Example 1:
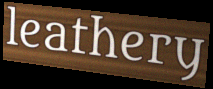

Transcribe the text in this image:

leathery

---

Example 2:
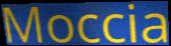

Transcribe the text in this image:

Moccia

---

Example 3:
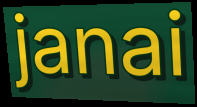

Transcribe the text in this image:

janai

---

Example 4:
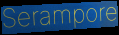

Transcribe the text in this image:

Serampore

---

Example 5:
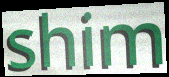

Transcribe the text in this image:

shim